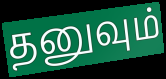
தனுவும்